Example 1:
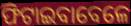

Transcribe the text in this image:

ଫିଟାଇବାବେଳେ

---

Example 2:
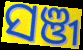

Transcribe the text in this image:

ସଞ୍ଜ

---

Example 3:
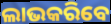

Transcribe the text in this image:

ଲାଭକରିବେ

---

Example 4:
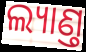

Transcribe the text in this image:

ଲ୍ୟାଣ୍ତ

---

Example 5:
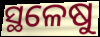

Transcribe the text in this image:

ସ୍ଥଳେଷୁ